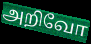
அறிவோ